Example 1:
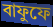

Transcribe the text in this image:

বাফুফে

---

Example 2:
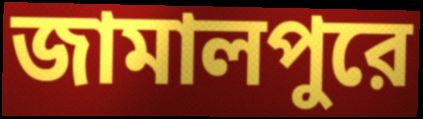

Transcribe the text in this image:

জামালপুরে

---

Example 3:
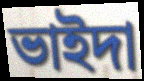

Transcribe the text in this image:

ভাইদা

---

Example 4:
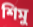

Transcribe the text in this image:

শিমু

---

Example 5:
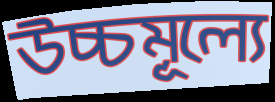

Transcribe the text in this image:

উচ্চমূল্যে